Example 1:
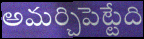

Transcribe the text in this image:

అమర్చిపెట్టేది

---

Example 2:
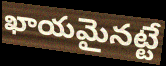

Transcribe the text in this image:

ఖాయమైనట్టే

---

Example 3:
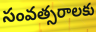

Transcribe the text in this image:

సంవత్సరాలకు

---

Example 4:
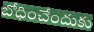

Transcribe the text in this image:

బోధించేందుకు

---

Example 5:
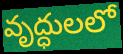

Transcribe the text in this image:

వృద్ధులలో